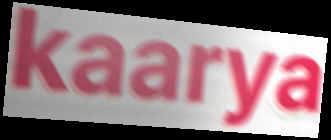
kaarya